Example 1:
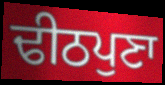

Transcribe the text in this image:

ਢੀਠਪੁਣਾ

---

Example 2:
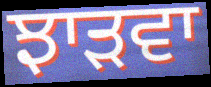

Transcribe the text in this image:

ਝਾੜਵਾ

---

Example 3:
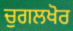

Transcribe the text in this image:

ਚੁਗਲਖੋਰ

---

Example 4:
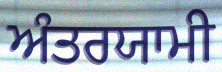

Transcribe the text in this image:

ਅੰਤਰਯਾਮੀ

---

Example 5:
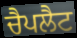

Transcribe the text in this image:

ਚੈਪਲੈਟ